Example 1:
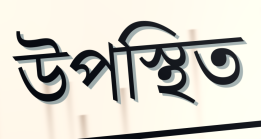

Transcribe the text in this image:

উপস্থিত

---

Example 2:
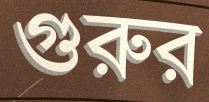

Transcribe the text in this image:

গুরুর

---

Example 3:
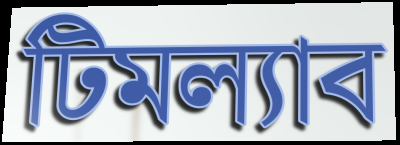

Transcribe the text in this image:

টিমল্যাব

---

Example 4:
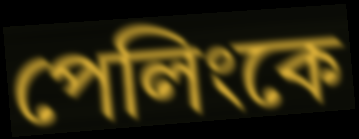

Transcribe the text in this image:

পেলিংকে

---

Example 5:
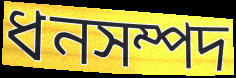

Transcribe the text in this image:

ধনসম্পদ